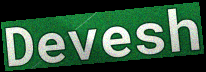
Devesh